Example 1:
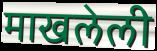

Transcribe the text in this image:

माखलेली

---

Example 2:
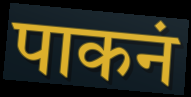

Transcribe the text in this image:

पाकनं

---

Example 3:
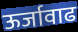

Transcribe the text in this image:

ऊर्जावाढ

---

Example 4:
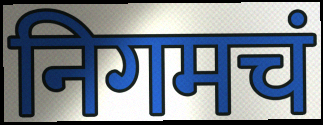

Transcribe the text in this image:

निगमचं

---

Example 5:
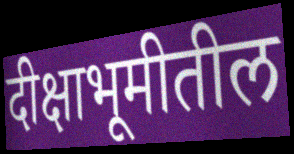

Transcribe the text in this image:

दीक्षाभूमीतील